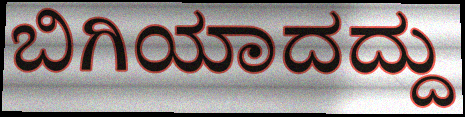
ಬಿಗಿಯಾದದ್ದು